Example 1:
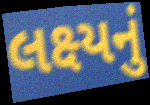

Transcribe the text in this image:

લક્ષ્યનું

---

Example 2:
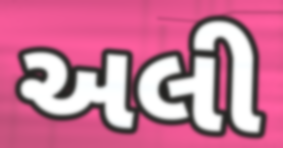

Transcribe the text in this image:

અલી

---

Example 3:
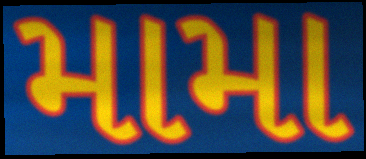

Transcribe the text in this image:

મામા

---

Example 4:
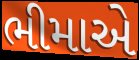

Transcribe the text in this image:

ભીમાએ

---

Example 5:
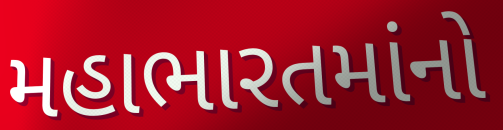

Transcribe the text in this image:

મહાભારતમાંનો